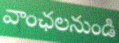
వాంఛలనుండి